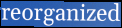
reorganized